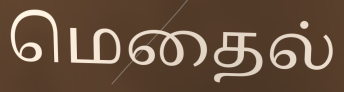
மெதைல்